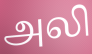
அலி